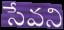
సేవని